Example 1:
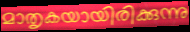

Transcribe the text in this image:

മാതൃകയായിരിക്കുന്നു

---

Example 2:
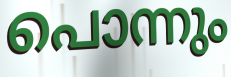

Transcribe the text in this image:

പൊന്നും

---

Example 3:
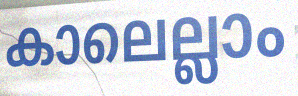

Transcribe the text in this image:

കാലെല്ലാം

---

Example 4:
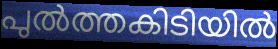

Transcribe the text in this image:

പുൽത്തകിടിയിൽ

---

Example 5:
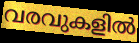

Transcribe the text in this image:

വരവുകളിൽ